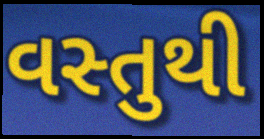
વસ્તુથી